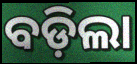
ବଡ଼ିଲା